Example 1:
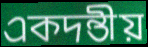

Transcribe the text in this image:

একদন্তীয়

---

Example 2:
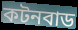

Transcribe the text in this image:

কটনবাড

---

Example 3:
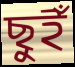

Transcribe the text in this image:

ছুইঁ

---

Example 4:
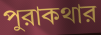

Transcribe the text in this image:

পুরাকথার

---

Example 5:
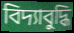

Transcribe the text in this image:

বিদ্যাবুদ্ধি